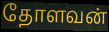
தோளவன்